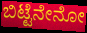
ಬಿಟ್ಟೆನೇನೋ